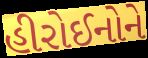
હીરોઈનોને